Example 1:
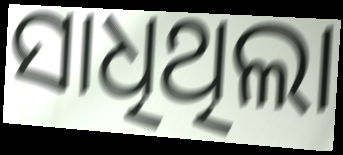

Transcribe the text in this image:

ସାଧିଥିଲା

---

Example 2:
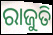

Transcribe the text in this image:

ରାଜୁତି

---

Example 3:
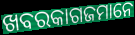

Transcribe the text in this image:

ଖବରକାଗଜମାନେ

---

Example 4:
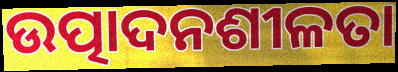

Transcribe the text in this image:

ଉତ୍ପାଦନଶୀଳତା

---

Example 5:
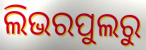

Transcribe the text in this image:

ଲିଭରପୁଲରୁ